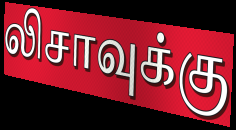
லிசாவுக்கு